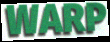
WARP